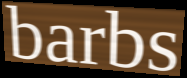
barbs